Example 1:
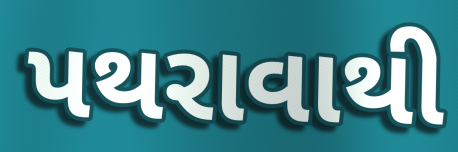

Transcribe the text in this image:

પથરાવાથી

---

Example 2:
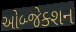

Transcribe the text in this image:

ઓબ્જેક્શન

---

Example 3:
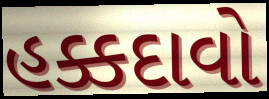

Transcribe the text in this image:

હક્કદાવો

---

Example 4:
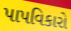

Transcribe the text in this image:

પાપવિકારો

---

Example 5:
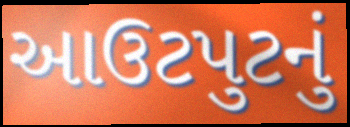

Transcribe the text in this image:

આઉટપુટનું